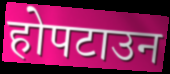
होपटाउन